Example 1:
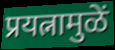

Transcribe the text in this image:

प्रयत्नामुळें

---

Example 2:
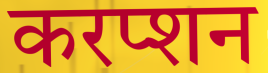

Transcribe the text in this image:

करप्शन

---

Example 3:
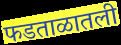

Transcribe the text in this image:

फडताळातली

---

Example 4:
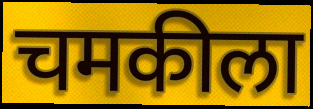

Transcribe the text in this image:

चमकीला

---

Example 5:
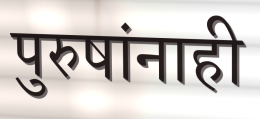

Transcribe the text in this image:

पुरुषांनाही